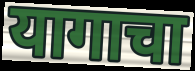
यागाचा